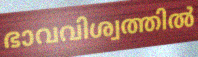
ഭാവവിശ്വത്തിൽ